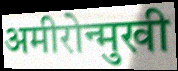
अमीरोन्मुखी